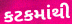
કટકમાંથી